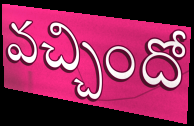
వచ్చిందో